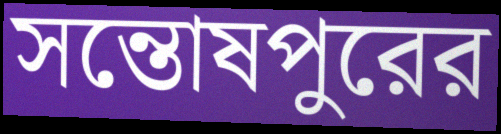
সন্তোষপুরের